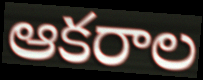
ఆకరాల